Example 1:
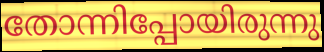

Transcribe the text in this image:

തോന്നിപ്പോയിരുന്നു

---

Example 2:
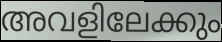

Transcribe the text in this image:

അവളിലേക്കും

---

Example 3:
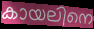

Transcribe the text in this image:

കായലിനെ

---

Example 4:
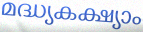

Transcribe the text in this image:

മദ്ധ്യകക്ഷ്യാം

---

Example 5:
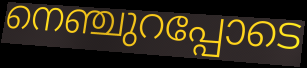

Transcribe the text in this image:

നെഞ്ചുറപ്പോടെ